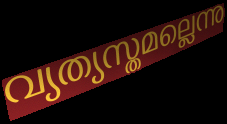
വ്യത്യസ്തമല്ലെന്നു